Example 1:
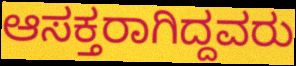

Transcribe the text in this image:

ಆಸಕ್ತರಾಗಿದ್ದವರು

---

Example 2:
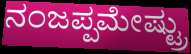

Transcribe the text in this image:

ನಂಜಪ್ಪಮೇಷ್ಟ್ರು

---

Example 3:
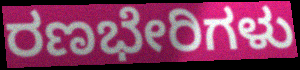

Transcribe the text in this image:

ರಣಭೇರಿಗಳು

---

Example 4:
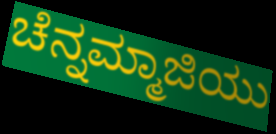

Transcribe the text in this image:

ಚೆನ್ನಮ್ಮಾಜಿಯು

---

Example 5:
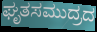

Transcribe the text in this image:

ಘೃತಸಮುದ್ರದ